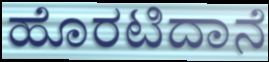
ಹೊರಟಿದಾನೆ